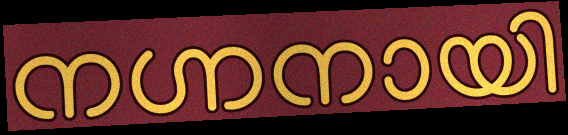
നഗ്നനായി